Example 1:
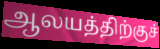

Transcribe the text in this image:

ஆலயத்திற்குச்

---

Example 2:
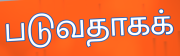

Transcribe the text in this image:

படுவதாகக்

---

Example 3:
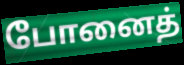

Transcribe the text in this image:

போனைத்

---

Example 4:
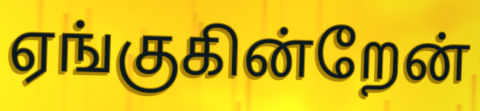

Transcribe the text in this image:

ஏங்குகின்றேன்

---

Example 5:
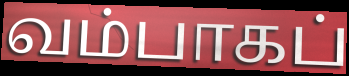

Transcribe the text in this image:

வம்பாகப்